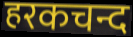
हरकचन्द